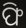
ଫି